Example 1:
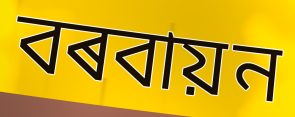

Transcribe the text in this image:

বৰবায়ন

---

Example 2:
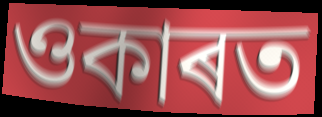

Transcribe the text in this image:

ওকাৰত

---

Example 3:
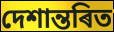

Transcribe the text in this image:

দেশান্তৰিত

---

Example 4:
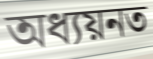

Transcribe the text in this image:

অধ্যয়নত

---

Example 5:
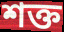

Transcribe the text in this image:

শক্ত